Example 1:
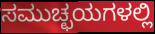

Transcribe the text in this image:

ಸಮುಚ್ಛಯಗಳಲ್ಲಿ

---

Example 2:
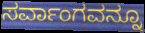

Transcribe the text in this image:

ಸರ್ವಾಂಗವನ್ನೂ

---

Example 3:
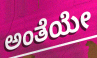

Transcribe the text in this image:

ಅಂತೆಯೇ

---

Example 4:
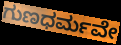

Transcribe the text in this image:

ಗುಣಧರ್ಮವೇ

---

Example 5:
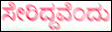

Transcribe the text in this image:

ಸೇರಿದ್ದವೆಂದು